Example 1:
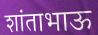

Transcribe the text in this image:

शांताभाऊ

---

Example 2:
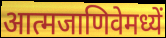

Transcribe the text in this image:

आत्मजाणिवेमध्यें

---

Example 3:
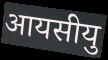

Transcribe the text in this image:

आयसीयु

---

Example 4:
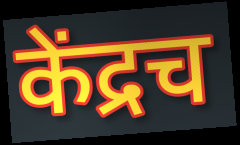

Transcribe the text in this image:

केंद्रच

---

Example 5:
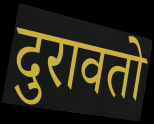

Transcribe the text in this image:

दुरावतो